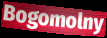
Bogomolny